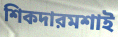
শিকদারমশাই